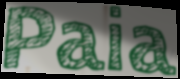
Paia